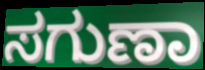
ಸಗುಣಾ